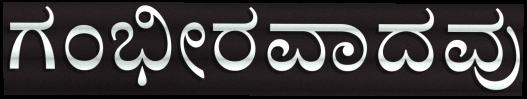
ಗಂಭೀರವಾದವು